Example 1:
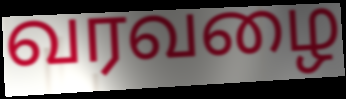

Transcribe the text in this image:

வரவழை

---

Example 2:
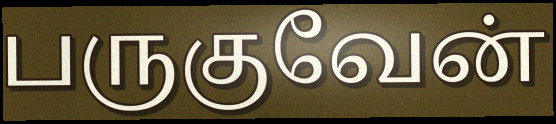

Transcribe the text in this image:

பருகுவேன்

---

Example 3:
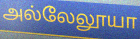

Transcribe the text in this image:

அல்லேலூயா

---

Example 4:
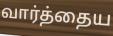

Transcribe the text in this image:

வார்த்தைய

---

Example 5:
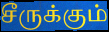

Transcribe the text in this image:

சீருக்கும்